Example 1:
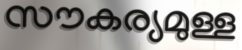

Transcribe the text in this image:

സൗകര്യമുള്ള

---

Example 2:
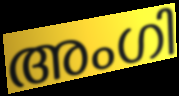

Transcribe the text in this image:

അംഗി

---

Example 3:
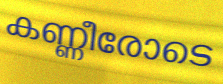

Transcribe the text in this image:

കണ്ണീരോടെ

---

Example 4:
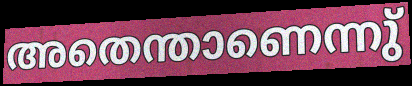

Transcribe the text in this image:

അതെന്താണെന്നു്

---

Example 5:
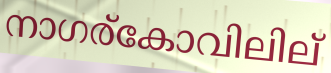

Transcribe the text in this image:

നാഗര്കോവിലില്